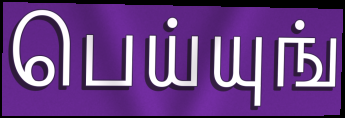
பெய்யுங்